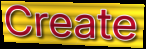
Create